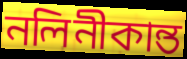
নলিনীকান্ত